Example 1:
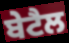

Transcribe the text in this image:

ਬੇਟੈਲ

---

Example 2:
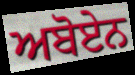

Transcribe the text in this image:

ਅਬੋਏਨ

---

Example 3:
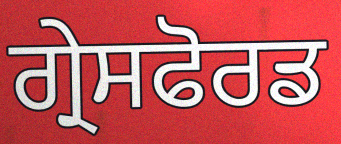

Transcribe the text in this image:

ਗ੍ਰੇਸਫੋਰਡ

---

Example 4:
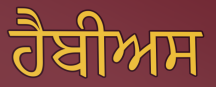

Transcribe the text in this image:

ਹੈਬੀਅਸ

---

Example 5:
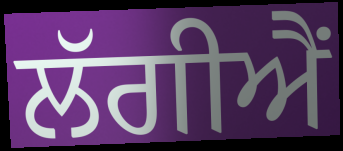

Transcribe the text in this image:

ਲੱਗੀਐਂ